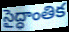
సైద్ధాంతిక